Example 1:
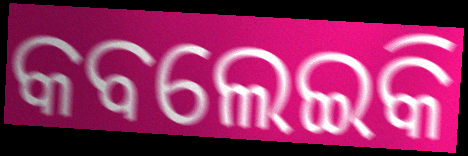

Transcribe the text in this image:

କବଲେଇକି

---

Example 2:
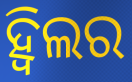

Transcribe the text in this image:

ହ୍ଵିଲର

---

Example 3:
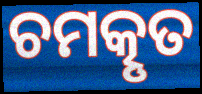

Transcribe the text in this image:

ଚମତ୍କୃତ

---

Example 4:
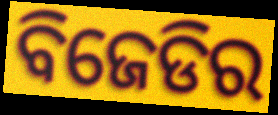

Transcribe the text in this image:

ବିଜେଡିର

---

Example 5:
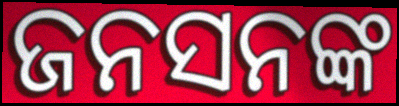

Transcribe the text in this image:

ଜନସନଙ୍କ